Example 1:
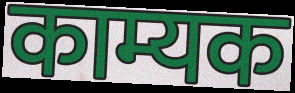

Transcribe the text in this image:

काम्यक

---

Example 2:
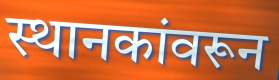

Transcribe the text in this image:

स्थानकांवरून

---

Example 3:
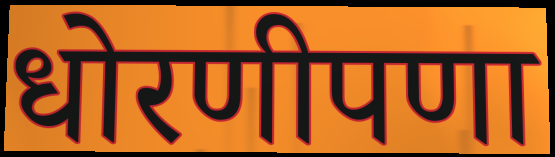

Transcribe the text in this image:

धोरणीपणा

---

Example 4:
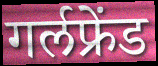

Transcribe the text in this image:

गर्लफ्रेंड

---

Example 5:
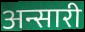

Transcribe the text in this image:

अन्सारी